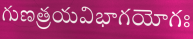
గుణత్రయవిభాగయోగః